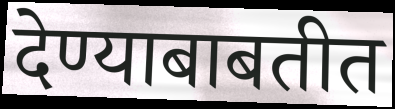
देण्याबाबतीत